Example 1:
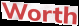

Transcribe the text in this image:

Worth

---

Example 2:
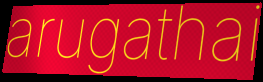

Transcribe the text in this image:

arugathai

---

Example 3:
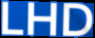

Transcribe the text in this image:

LHD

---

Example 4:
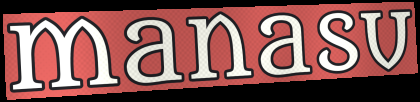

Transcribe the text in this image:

manasu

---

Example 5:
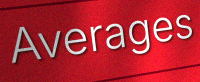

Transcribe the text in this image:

Averages